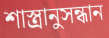
শাস্ত্রানুসন্ধান